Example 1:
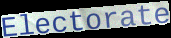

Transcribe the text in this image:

Electorate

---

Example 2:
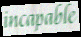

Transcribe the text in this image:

incapable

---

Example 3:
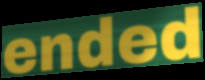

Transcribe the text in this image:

ended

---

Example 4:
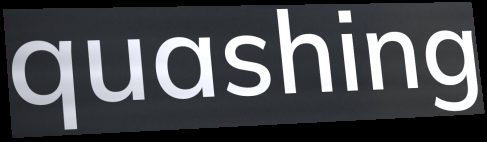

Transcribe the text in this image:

quashing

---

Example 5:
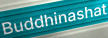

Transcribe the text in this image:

Buddhinashat